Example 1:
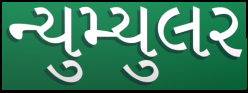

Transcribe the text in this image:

ન્યુમ્યુલર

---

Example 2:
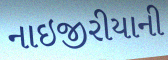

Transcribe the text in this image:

નાઇજીરીયાની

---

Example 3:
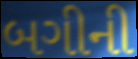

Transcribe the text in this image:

બગીની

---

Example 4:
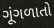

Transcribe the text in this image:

ગૂંગળાતો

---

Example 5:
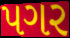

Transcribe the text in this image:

પગર